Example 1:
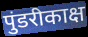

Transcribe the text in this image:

पुंडरीकाक्ष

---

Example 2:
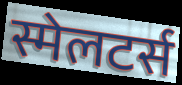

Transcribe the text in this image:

स्मेलटर्स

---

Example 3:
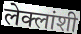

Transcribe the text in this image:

लेक्लांशी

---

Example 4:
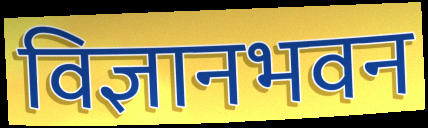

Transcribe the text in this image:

विज्ञानभवन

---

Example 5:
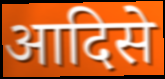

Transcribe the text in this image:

आदिसे